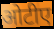
ओटीए